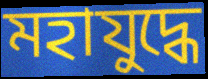
মহাযুদ্ধে